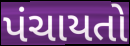
પંચાયતો